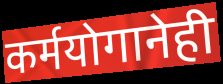
कर्मयोगानेही